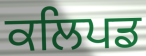
ਕਲਿਪਡ